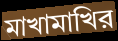
মাখামাখির